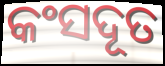
କଂସଦୂତ